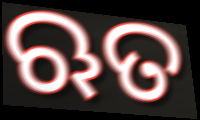
ଋତ